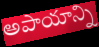
అపాయాన్ని